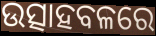
ଉତ୍ସାହବଳରେ